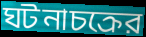
ঘটনাচক্রের